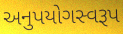
અનુપયોગસ્વરૂપ